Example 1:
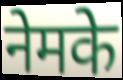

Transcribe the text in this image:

नेमके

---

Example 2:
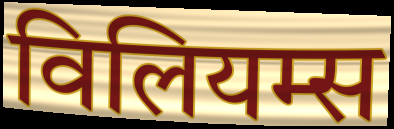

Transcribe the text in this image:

विलियम्स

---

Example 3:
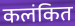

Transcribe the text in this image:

कलंकित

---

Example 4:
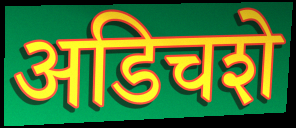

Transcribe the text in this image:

अडिचशे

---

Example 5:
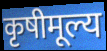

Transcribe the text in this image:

कृषीमूल्य